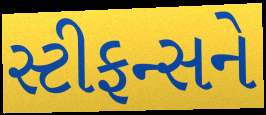
સ્ટીફન્સને